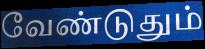
வேண்டுதும்